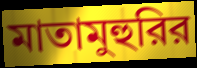
মাতামুহুরির